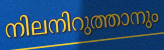
നിലനിറുത്താനും